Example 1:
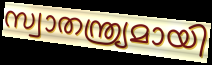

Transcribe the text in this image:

സ്വാതന്ത്ര്യമായി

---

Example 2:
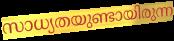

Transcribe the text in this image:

സാധ്യതയുണ്ടായിരുന്ന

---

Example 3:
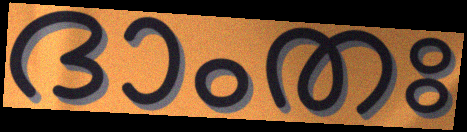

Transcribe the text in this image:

ദാംതഃ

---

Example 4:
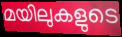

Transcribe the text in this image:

മയിലുകളുടെ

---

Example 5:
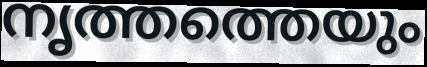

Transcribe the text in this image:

നൃത്തത്തെയും